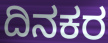
ದಿನಕರ